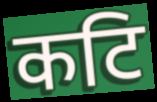
कटि